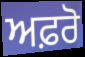
ਅਫ਼ਰੋ